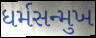
ધર્મસન્મુખ